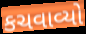
કચવાવ્યો